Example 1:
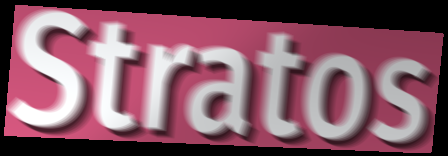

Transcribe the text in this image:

Stratos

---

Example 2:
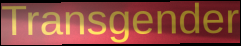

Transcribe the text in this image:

Transgender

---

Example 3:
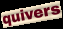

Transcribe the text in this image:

quivers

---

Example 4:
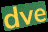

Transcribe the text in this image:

dve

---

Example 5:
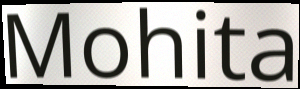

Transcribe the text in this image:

Mohita